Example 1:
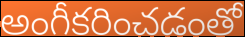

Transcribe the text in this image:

అంగీకరించడంతో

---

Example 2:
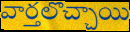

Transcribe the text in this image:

వార్తలొచ్చాయి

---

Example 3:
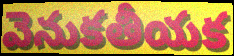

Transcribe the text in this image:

వెనుకతీయక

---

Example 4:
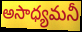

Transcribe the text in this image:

అసాధ్యమనీ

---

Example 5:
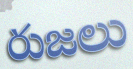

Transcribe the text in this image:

రుజలు